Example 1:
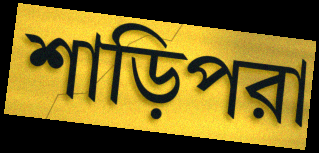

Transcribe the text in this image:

শাড়িপরা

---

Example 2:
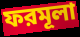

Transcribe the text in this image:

ফরমূলা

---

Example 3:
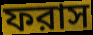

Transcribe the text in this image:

ফরাস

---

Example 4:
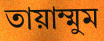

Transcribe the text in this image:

তায়াম্মুম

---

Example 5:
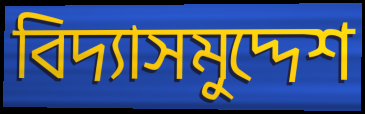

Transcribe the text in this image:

বিদ্যাসমুদ্দেশ